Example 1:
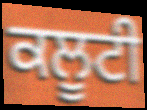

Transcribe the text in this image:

ਕਲੂਟੀ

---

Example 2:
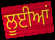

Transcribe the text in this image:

ਲੂਈਆਂ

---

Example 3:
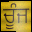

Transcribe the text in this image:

ਚੂੰਜ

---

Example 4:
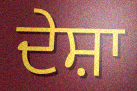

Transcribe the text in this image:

ਦੇਸ਼ਾ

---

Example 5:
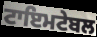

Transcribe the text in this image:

ਟਾਇਮਟੇਬਲ